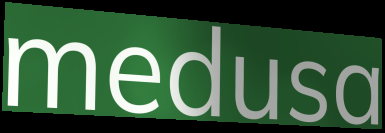
medusa